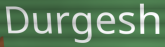
Durgesh